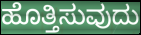
ಹೊತ್ತಿಸುವುದು